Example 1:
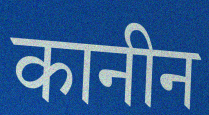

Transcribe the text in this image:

कानीन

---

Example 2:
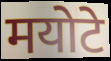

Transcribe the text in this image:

मयोटे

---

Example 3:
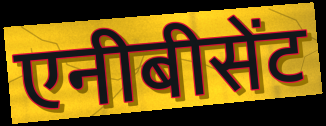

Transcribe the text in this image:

एनीबीसेंट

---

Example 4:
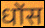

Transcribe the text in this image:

धोंस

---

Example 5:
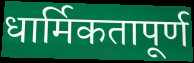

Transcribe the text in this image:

धार्मिकतापूर्ण